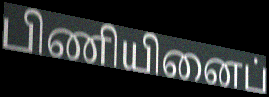
பிணியினைப்